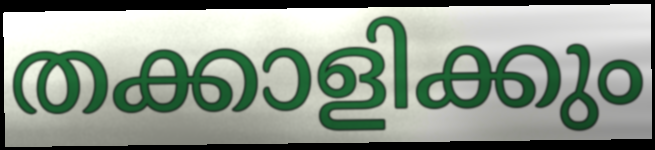
തക്കാളിക്കും